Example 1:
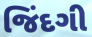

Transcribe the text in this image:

જિંદગી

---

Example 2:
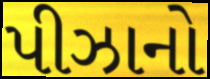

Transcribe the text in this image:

પીઝાનો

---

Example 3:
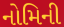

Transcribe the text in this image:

નોમિની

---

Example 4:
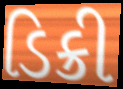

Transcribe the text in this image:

ડિક્રી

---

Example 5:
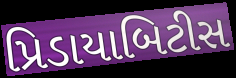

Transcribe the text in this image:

પ્રિડાયાબિટીસ